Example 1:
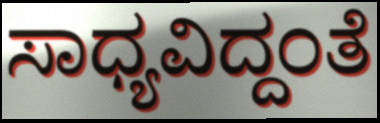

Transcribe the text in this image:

ಸಾಧ್ಯವಿದ್ದಂತೆ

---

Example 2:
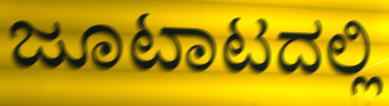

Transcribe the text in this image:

ಜೂಟಾಟದಲ್ಲಿ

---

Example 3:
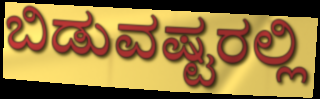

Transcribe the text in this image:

ಬಿಡುವಷ್ಟರಲ್ಲಿ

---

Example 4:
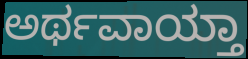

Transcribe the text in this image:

ಅರ್ಥವಾಯ್ತಾ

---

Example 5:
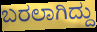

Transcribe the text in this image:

ಬರಲಾಗಿದ್ದು